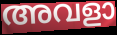
അവളാ